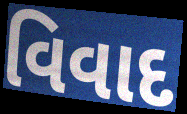
વિવાદ